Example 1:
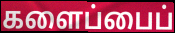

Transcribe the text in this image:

களைப்பைப்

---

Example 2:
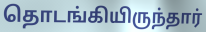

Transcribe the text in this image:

தொடங்கியிருந்தார்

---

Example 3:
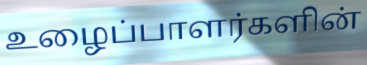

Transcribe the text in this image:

உழைப்பாளர்களின்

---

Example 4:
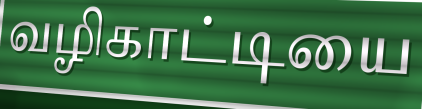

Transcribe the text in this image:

வழிகாட்டியை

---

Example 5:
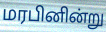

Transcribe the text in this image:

மரபினின்று